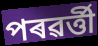
পৰৱৰ্ত্তী